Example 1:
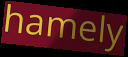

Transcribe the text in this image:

hamely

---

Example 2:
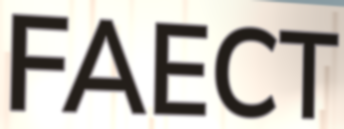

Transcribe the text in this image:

FAECT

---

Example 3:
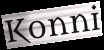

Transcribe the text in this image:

Konni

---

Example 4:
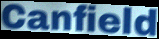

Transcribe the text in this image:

Canfield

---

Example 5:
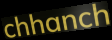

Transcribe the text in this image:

chhanch